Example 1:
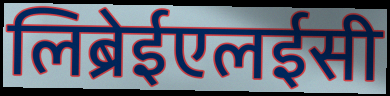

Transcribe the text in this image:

लिब्रेईएलईसी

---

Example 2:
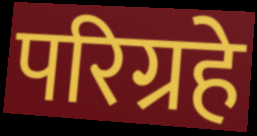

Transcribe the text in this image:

परिग्रहे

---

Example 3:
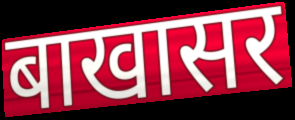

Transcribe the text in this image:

बाखासर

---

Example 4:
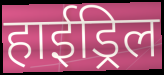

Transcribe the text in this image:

हाईड्रिल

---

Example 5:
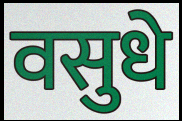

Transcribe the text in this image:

वसुधे